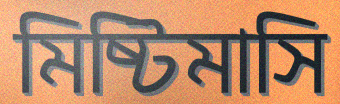
মিষ্টিমাসি